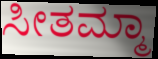
ಸೀತಮ್ಮಾ